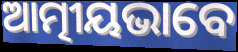
ଆତ୍ମୀୟଭାବେ